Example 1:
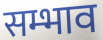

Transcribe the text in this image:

सम्भाव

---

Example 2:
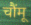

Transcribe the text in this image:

चौंमू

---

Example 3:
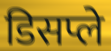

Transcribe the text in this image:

डिसप्ले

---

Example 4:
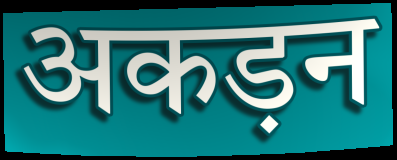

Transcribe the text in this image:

अकड़न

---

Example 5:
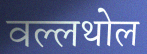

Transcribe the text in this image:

वल्लथोल